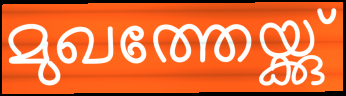
മുഖത്തേയ്ക്കു്